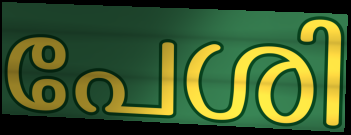
പേശി